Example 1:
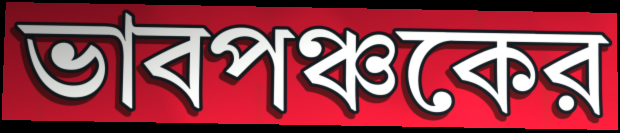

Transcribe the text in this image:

ভাবপঞ্চকের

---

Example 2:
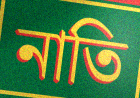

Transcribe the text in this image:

নাতি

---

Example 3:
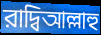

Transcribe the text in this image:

রাদ্বিআল্লাহু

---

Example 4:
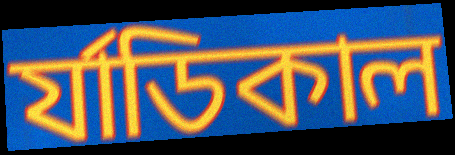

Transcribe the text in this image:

র্যাডিকাল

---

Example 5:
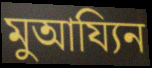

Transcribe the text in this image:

মুআয্যিন